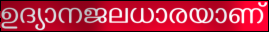
ഉദ്യാനജലധാരയാണ്